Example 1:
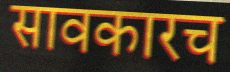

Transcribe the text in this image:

सावकारच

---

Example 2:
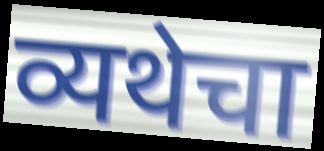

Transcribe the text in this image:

व्यथेचा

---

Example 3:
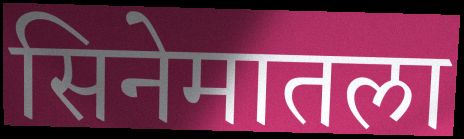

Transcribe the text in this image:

सिनेमातला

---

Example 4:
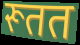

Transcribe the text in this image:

रूतत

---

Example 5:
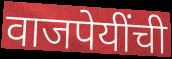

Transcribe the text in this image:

वाजपेयींची